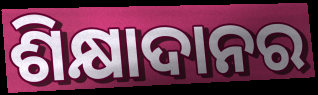
ଶିକ୍ଷାଦାନର